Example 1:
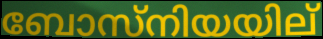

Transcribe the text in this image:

ബോസ്നിയയില്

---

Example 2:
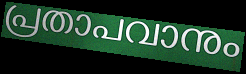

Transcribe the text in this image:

പ്രതാപവാനും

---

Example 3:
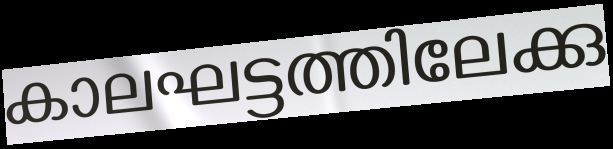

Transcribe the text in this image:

കാലഘട്ടത്തിലേക്കു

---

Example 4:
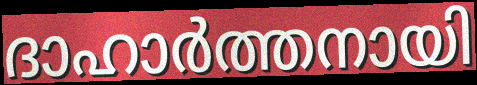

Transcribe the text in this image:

ദാഹാർത്തനായി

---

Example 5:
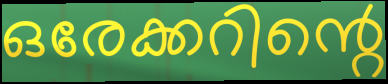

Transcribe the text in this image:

ഒരേക്കറിന്റെ